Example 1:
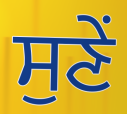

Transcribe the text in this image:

ਸੁਣੇਂ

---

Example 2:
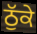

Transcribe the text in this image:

ਠੁੱਕੇ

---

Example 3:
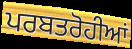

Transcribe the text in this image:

ਪਰਬਤਰੋਹੀਆਂ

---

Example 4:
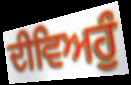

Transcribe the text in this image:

ਦੀਵਿਅਹੁੰ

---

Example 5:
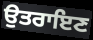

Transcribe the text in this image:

ਉਤਰਾਇਣ